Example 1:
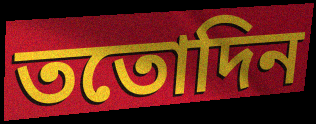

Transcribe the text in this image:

ততোদিন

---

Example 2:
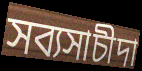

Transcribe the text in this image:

সব্যসাচীদা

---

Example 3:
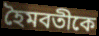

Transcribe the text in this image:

হৈমবতীকে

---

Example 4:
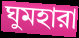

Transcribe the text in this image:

ঘুমহারা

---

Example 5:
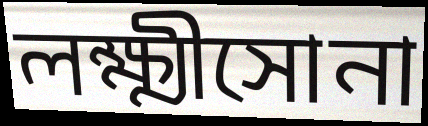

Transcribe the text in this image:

লক্ষ্মীসোনা